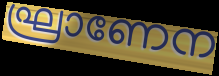
ഘ്രാണേന